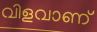
വിളവാണ്